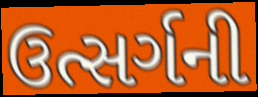
ઉત્સર્ગની